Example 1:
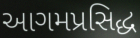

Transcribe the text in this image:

આગમપ્રસિદ્ધ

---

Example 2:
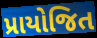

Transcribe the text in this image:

પ્રાયોજિત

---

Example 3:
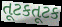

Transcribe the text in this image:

તૂટકતૂટક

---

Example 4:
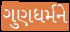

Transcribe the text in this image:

ગુણધર્મને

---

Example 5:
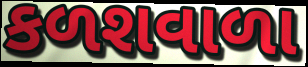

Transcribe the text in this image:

કળશવાળા